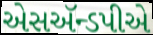
એસઍન્ડપીએ